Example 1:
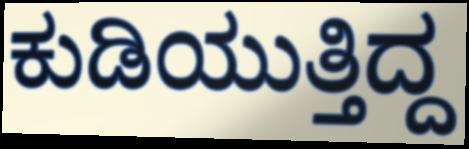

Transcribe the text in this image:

ಕುಡಿಯುತ್ತಿದ್ದ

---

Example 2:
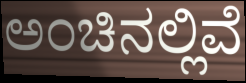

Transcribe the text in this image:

ಅಂಚಿನಲ್ಲಿವೆ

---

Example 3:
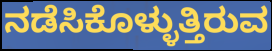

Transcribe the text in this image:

ನಡೆಸಿಕೊಳ್ಳುತ್ತಿರುವ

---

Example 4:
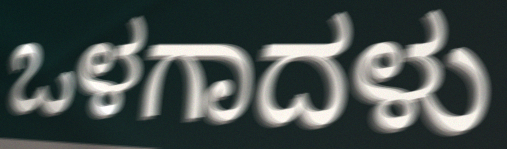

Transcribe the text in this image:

ಒಳಗಾದಳು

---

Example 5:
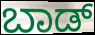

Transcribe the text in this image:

ಬಾಡ್